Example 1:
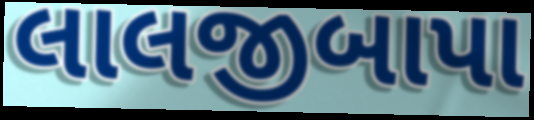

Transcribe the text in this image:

લાલજીબાપા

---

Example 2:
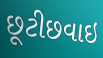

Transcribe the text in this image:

છૂટીછવાઇ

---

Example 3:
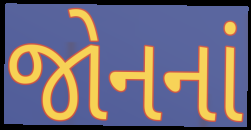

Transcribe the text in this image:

જોનનાં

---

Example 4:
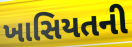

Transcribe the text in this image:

ખાસિયતની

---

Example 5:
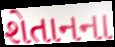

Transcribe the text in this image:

શેતાનના